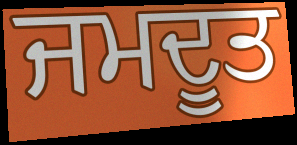
ਜਮਦੂਤ